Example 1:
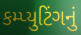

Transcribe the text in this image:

કમ્પ્યુટિંગનું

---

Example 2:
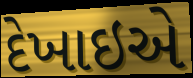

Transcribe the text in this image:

દેખાઇએ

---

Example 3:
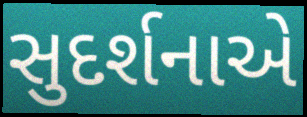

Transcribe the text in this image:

સુદર્શનાએ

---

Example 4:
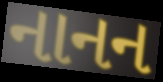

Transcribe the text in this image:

નાનન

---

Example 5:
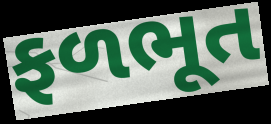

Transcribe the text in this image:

ફળભૂત